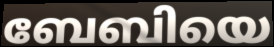
ബേബിയെ